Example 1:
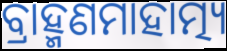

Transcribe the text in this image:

ବ୍ରାହ୍ମଣମାହାତ୍ମ୍ୟ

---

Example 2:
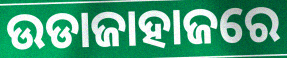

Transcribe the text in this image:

ଉଡାଜାହାଜରେ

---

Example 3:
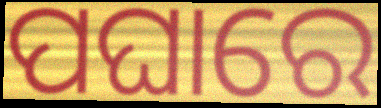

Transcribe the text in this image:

ପଘାରେ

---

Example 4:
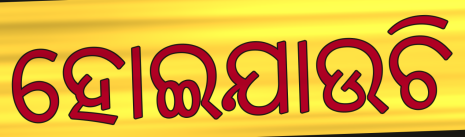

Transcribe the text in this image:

ହୋଇଯାଉଚି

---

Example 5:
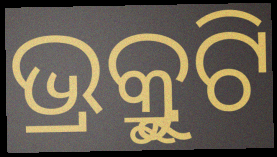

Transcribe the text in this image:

ଭ୍ର୍ରୁକୁଟି